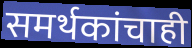
समर्थकांचाही